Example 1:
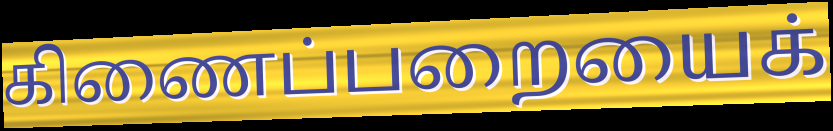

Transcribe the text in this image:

கிணைப்பறையைக்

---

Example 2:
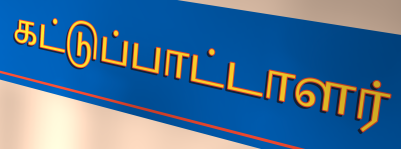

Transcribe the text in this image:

கட்டுப்பாட்டாளர்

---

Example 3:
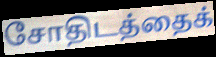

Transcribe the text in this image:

சோதிடத்தைக்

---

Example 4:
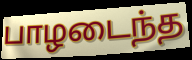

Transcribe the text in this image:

பாழடைந்த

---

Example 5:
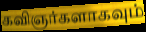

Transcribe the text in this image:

கவிஞர்களாகவும்